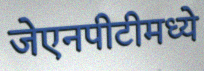
जेएनपीटीमध्ये